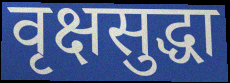
वृक्षसुद्धा